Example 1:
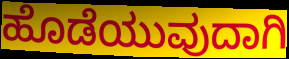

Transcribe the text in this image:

ಹೊಡೆಯುವುದಾಗಿ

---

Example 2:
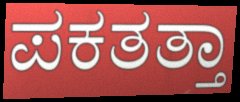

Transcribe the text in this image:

ಪಕತತ್ತಾ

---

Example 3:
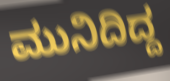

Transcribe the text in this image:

ಮುನಿದಿದ್ದ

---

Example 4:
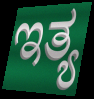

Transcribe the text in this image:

ಇತ್ಯ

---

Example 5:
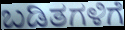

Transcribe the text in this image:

ಬಡಿತಗಳಿಗೆ